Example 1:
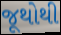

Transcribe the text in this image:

જૂથોથી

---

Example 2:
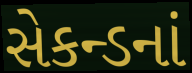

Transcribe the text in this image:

સેકન્ડનાં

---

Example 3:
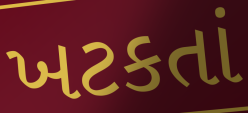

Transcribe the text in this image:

ખટકતાં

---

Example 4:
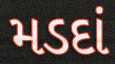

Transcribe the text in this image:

મડદાં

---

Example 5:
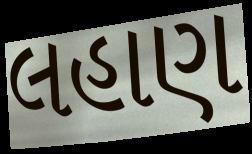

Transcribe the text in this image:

લહાણ